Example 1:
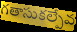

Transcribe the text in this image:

గతాసుకల్పేవ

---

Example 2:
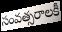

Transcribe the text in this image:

సంవత్సరాలకీ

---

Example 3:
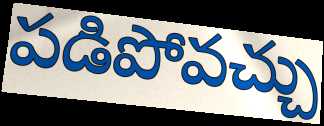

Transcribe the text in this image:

పడిపోవచ్చు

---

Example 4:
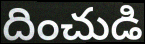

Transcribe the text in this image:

దించుడి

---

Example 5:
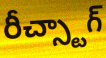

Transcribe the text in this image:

రీచ్స్టాగ్